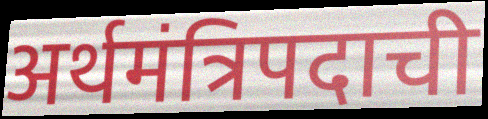
अर्थमंत्रिपदाची